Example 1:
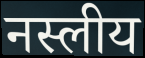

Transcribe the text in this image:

नस्लीय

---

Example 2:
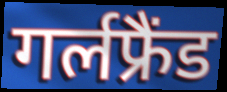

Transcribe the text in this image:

गर्लफ्रैंड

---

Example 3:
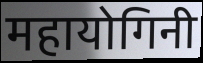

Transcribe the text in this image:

महायोगिनी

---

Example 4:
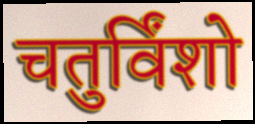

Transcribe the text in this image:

चतुर्विंशो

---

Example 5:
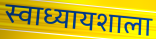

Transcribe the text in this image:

स्वाध्यायशाला